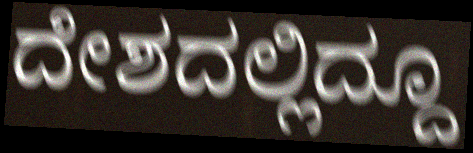
ದೇಶದಲ್ಲಿದ್ದೂ